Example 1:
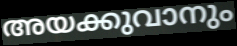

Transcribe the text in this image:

അയക്കുവാനും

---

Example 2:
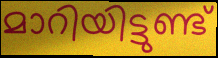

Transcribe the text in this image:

മാറിയിട്ടുണ്ട്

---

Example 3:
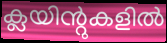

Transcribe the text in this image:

ക്ലയിന്റുകളിൽ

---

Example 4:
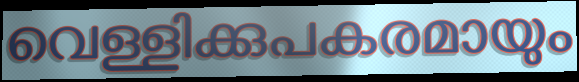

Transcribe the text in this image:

വെള്ളിക്കുപകരമായും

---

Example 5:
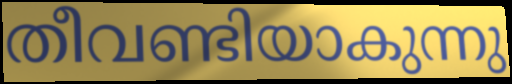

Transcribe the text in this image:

തീവണ്ടിയാകുന്നു